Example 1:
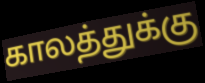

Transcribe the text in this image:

காலத்துக்கு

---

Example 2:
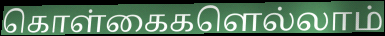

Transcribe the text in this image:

கொள்கைகளெல்லாம்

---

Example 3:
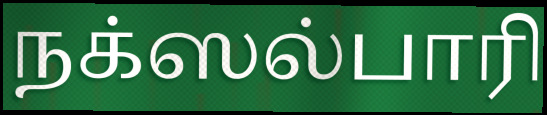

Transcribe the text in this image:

நக்ஸல்பாரி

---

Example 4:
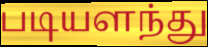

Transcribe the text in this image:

படியளந்து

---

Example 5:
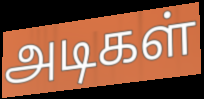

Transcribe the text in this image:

அடிகள்